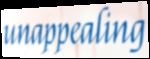
unappealing